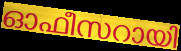
ഓഫീസറായി